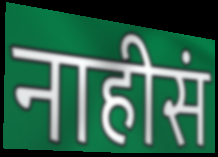
नाहीसं